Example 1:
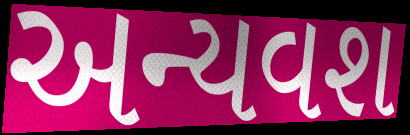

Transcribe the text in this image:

અન્યવશ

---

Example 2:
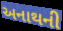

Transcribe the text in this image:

અનાથની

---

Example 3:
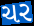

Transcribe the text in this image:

ચર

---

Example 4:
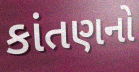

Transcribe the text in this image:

કાંતણનો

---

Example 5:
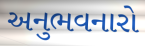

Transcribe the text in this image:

અનુભવનારો